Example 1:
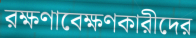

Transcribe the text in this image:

রক্ষণাবেক্ষণকারীদের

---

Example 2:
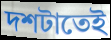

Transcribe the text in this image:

দশটাতেই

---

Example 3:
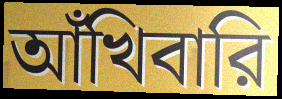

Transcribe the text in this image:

আঁখিবারি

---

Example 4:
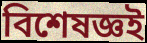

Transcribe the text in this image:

বিশেষজ্ঞই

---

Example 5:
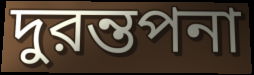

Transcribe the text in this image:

দুরন্তপনা